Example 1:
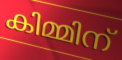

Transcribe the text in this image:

കിമ്മിന്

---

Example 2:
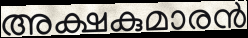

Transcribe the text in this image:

അക്ഷകുമാരൻ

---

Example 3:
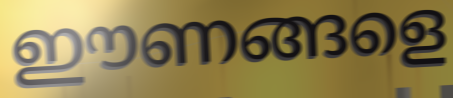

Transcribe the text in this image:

ഈണങ്ങളെ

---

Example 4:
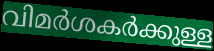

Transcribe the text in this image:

വിമർശകർക്കുള്ള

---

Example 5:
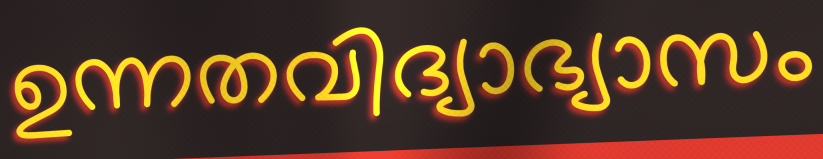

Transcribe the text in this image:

ഉന്നതവിദ്യാഭ്യാസം